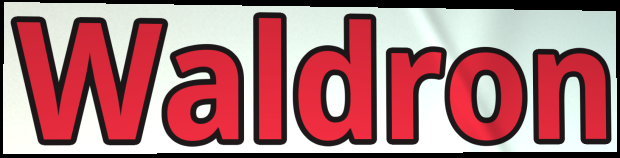
Waldron